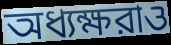
অধ্যক্ষরাও